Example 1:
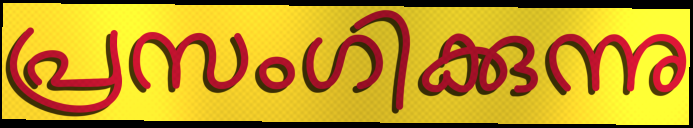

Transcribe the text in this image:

പ്രസംഗിക്കുന്നു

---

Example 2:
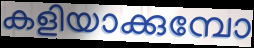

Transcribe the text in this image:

കളിയാക്കുമ്പോ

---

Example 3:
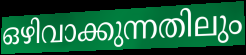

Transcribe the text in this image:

ഒഴിവാക്കുന്നതിലും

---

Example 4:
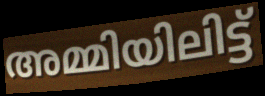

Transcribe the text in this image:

അമ്മിയിലിട്ട്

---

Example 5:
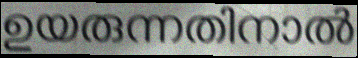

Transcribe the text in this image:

ഉയരുന്നതിനാൽ